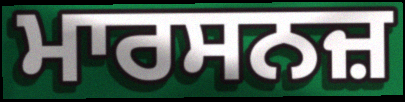
ਮਾਰਸਨਜ਼